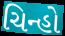
ચિન્હો